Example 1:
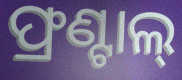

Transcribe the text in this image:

ଫ୍ରଣ୍ଟାଲ୍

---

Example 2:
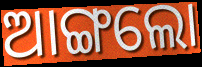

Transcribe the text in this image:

ଆଙ୍ଗଲୋ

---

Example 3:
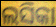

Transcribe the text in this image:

ଲସିକା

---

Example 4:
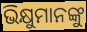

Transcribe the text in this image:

ଭିକ୍ଷୁମାନଙ୍କୁ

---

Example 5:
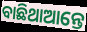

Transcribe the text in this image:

ବାଛିଥାଆନ୍ତେ